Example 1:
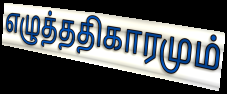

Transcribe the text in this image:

எழுத்ததிகாரமும்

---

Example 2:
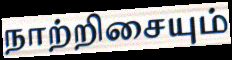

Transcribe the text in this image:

நாற்றிசையும்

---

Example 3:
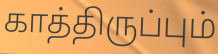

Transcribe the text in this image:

காத்திருப்பும்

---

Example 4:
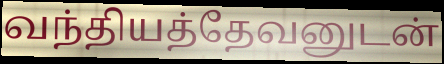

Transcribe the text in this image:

வந்தியத்தேவனுடன்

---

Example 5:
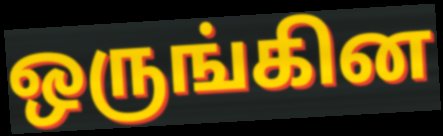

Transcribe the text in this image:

ஒருங்கின